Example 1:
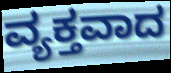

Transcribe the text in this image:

ವ್ಯಕ್ತವಾದ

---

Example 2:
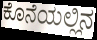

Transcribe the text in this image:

ಕೊನೆಯಲ್ಲಿನ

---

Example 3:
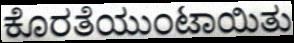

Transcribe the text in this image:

ಕೊರತೆಯುಂಟಾಯಿತು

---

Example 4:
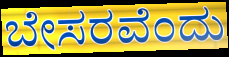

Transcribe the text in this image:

ಬೇಸರವೆಂದು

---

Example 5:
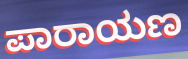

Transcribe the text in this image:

ಪಾರಾಯಣ